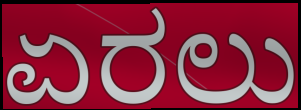
ಏರಲು